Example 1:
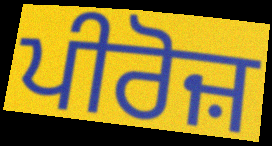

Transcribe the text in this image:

ਪੀਰੋਜ਼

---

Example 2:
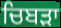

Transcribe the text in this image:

ਚਿਬੜਾ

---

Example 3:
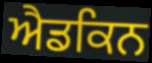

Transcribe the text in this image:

ਐਡਕਿਨ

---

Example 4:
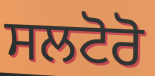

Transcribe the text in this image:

ਸਲਟੋਰੋ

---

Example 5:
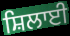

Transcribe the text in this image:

ਸ਼ਿਲਾਈ